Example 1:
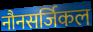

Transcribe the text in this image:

नौनसर्जिकल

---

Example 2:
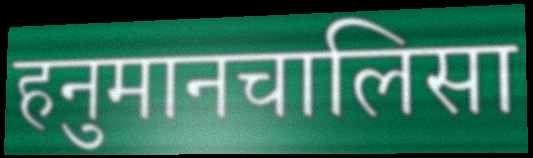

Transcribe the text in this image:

हनुमानचालिसा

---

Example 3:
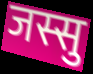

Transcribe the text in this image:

जस्सु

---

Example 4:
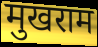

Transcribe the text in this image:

मुखराम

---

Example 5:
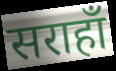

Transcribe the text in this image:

सराहाँ